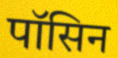
पॉसिन